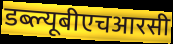
डब्ल्यूबीएचआरसी